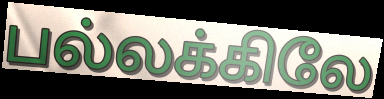
பல்லக்கிலே